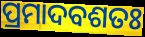
ପ୍ରମାଦବଶତଃ